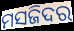
ମସଜିଦର